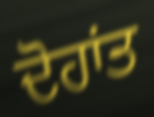
ਦੋਹਾਂਤ